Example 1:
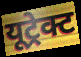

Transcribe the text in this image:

यूट्रेक्ट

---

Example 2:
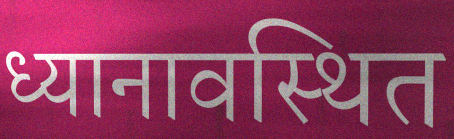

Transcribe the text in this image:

ध्यानावस्थित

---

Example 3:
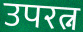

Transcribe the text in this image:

उपरत्न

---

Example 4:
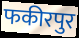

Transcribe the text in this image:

फकीरपुर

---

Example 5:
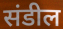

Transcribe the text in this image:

संडील